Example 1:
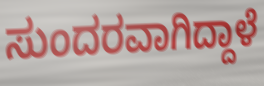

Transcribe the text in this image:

ಸುಂದರವಾಗಿದ್ದಾಳೆ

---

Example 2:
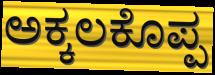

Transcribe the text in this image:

ಅಕ್ಕಲಕೊಪ್ಪ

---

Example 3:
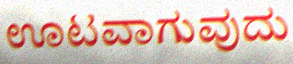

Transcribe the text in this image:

ಊಟವಾಗುವುದು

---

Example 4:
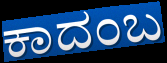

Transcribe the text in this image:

ಕಾದಂಬ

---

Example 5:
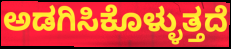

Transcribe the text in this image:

ಅಡಗಿಸಿಕೊಳ್ಳುತ್ತದೆ